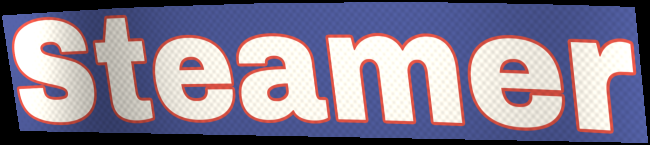
Steamer